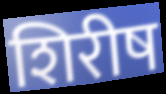
शिरीष